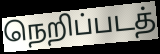
நெறிப்படத்